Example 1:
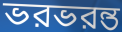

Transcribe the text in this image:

ভরভরন্ত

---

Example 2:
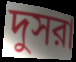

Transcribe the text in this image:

দুসরা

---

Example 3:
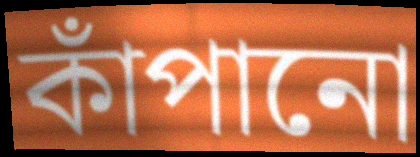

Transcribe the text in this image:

কাঁপানো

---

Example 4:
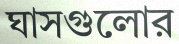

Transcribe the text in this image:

ঘাসগুলোর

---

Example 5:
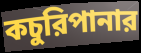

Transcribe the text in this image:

কচুরিপানার